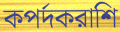
কপর্দকরাশি